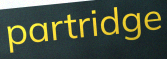
partridge